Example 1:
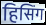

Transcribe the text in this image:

हिसिंग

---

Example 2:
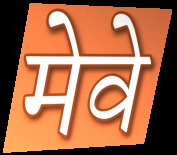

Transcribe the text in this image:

मेवे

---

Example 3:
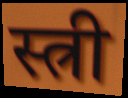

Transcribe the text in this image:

स्‍त्री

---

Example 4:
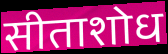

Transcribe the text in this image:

सीताशोध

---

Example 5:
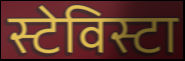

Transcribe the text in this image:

स्टेविस्टा